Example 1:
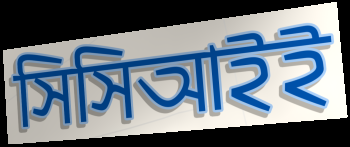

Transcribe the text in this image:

সিসিআইই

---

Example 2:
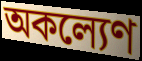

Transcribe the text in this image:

অকল্যেণ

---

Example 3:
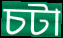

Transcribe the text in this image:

চটা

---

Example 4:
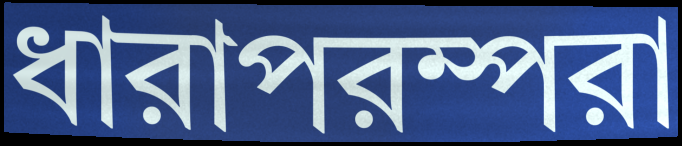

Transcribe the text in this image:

ধারাপরম্পরা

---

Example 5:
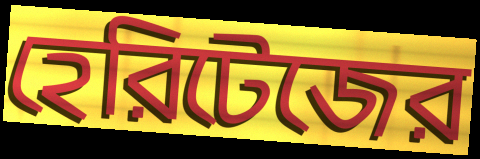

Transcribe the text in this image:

হেরিটেজের